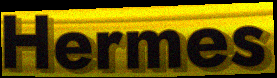
Hermes